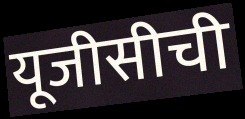
यूजीसीची